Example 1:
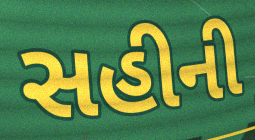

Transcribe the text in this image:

સહીની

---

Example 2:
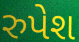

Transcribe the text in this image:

રુપેશ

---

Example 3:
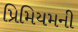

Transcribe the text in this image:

પ્રિમિયમની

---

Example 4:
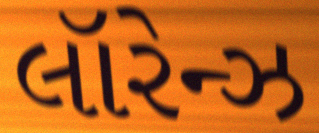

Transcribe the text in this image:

લૉરેન્ઝ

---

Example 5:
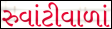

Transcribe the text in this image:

રુવાંટીવાળાં